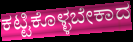
ಕಟ್ಟಿಕೊಳ್ಳಬೇಕಾದ